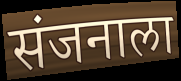
संजनाला